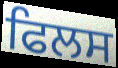
ਫਿਲਸ